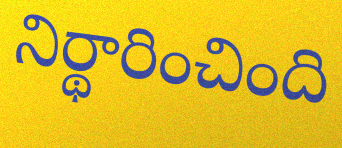
నిర్థారించింది